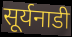
सूर्यनाडी